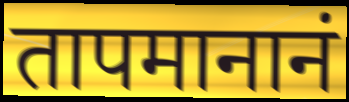
तापमानानं